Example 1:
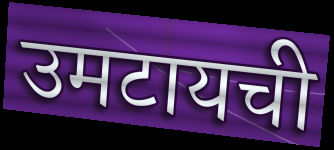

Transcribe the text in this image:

उमटायची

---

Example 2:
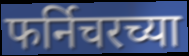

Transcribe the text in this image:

फर्निचरच्या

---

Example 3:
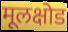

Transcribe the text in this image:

मूलक्षोड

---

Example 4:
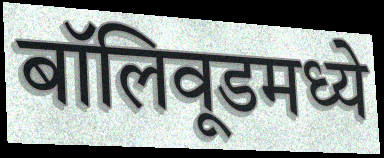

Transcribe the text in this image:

बॉलिवूडमध्ये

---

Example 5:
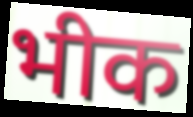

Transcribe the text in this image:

भीक